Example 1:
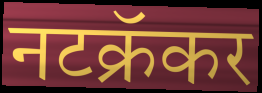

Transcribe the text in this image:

नटक्रॅकर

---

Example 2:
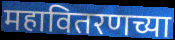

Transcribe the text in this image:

महावितरणच्या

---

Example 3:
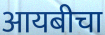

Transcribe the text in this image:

आयबीचा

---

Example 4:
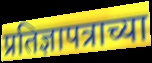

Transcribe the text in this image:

प्रतिज्ञापत्राच्या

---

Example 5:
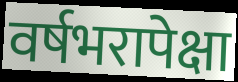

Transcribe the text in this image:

वर्षभरापेक्षा